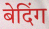
बेदिंग